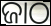
ଜାଠ